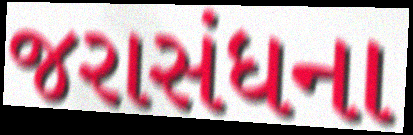
જરાસંધના